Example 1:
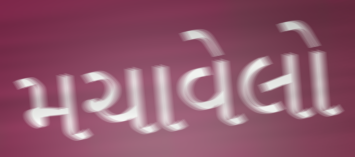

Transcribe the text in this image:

મચાવેલો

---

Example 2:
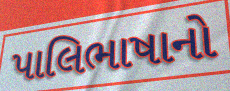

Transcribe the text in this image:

પાલિભાષાનો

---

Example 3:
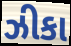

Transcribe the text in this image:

ઝીકા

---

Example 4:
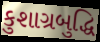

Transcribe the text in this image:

કુશાગ્રબુદ્ધિ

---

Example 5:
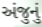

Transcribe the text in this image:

અંજુનું